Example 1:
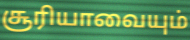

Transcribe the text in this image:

சூரியாவையும்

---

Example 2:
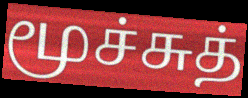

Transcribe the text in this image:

மூச்சுத்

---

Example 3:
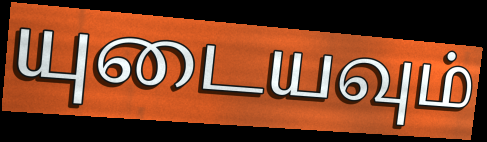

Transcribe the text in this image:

யுடையவும்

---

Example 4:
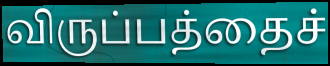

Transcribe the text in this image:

விருப்பத்தைச்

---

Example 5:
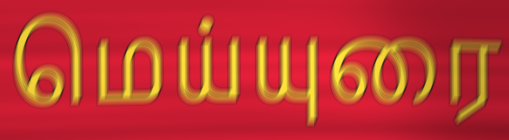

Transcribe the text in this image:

மெய்யுரை